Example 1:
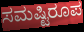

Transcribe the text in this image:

ಸಮಷ್ಟಿರೂಪ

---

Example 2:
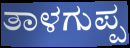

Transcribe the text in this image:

ತಾಳಗುಪ್ಪ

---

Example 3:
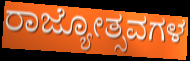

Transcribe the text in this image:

ರಾಜ್ಯೋತ್ಸವಗಳ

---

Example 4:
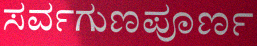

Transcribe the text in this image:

ಸರ್ವಗುಣಪೂರ್ಣ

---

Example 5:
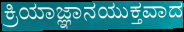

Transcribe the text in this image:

ಕ್ರಿಯಾಜ್ಞಾನಯುಕ್ತವಾದ